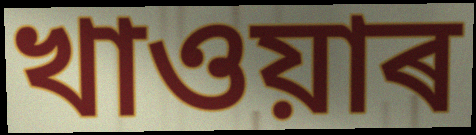
খাওয়াৰ